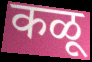
कळू